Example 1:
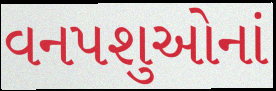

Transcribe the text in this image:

વનપશુઓનાં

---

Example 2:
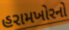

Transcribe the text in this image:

હરામખોરનો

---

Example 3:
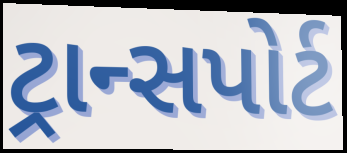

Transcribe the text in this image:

ટ્રાન્સપોર્ટ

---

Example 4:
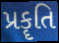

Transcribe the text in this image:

પ્રકૄતિ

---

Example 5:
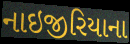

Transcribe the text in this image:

નાઇજીરિયાના